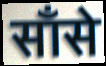
साँसे